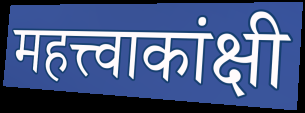
महत्त्वाकांक्षी